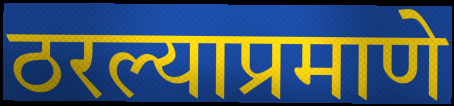
ठरल्याप्रमाणे